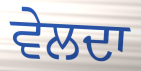
ਵੇਲਦਾ